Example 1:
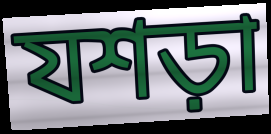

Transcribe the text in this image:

যশড়া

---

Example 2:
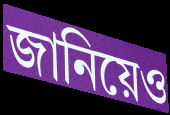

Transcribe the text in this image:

জানিয়েও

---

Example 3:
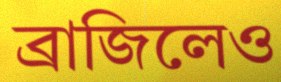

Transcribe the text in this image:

ব্রাজিলেও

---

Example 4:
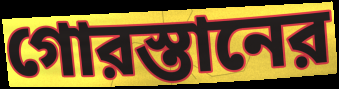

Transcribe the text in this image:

গোরস্তানের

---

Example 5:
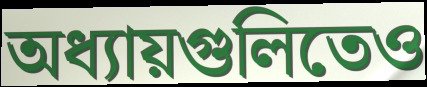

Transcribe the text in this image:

অধ্যায়গুলিতেও